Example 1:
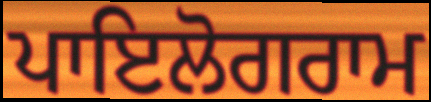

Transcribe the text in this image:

ਪਾਇਲੋਗਰਾਮ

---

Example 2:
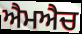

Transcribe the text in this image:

ਐਮਐਚ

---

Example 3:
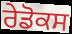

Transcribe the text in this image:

ਰੇਡੋਕਸ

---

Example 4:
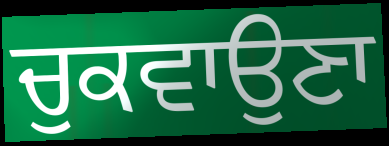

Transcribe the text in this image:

ਚੁਕਵਾਉਣਾ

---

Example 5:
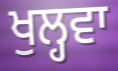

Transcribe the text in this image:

ਖੁਲ੍ਹਵਾ